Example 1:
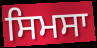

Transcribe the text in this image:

ਸਿਮਸਾ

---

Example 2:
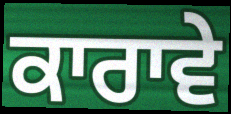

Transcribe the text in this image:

ਕਾਰਾਵੇ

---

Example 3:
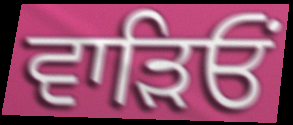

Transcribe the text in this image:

ਵਾੜਿਓਂ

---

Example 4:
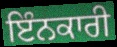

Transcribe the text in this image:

ਇੰਨਕਾਰੀ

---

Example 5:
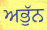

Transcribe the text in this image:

ਅਭੁੱਨ